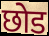
छोड